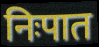
निःपात